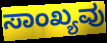
ಸಾಂಖ್ಯವು